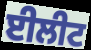
ਈਲੀਟ